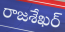
రాజశేఖర్